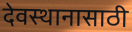
देवस्थानासाठी